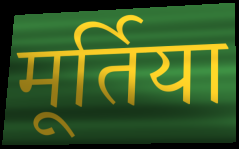
मूर्तिया